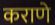
कराणे